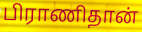
பிராணிதான்